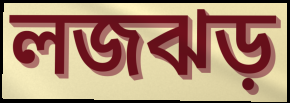
লজঝড়